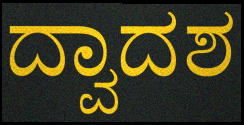
ದ್ವಾದಶ